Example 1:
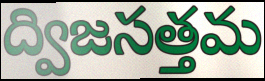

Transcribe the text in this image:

ద్విజసత్తమ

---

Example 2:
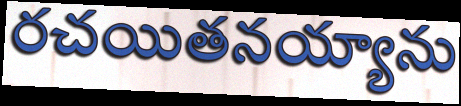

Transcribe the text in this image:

రచయితనయ్యాను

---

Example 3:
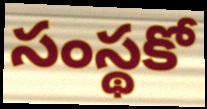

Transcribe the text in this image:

సంస్థకో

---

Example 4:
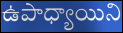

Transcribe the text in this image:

ఉపాధ్యాయిని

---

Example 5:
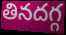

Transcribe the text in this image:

తినదగ్గ